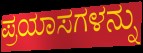
ಪ್ರಯಾಸಗಳನ್ನು